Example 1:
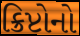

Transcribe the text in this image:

ક્રિપ્ટોનો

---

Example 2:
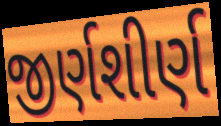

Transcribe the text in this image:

જીર્ણશીર્ણ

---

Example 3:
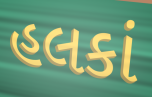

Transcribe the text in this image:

હલકાં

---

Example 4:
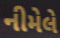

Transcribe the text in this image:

નીમેલે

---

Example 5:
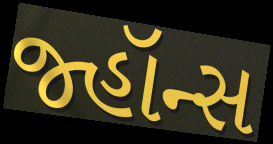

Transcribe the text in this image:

જ્હૉન્સ